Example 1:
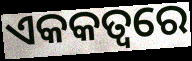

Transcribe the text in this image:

ଏକକତ୍ୱରେ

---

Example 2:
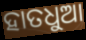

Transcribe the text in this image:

ହାତଧୁଆ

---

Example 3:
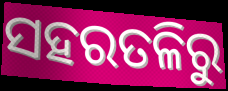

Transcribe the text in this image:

ସହରତଳିରୁ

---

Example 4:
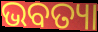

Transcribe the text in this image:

ଭବତ୍ୟା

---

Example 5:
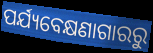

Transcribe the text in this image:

ପର୍ଯ୍ୟବେକ୍ଷଣାଗାରରୁ